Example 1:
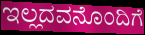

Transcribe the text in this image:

ಇಲ್ಲದವನೊಂದಿಗೆ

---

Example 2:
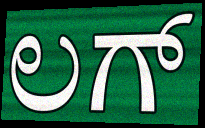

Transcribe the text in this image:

ಲಗ್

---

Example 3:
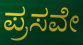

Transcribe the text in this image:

ಪ್ರಸವೇ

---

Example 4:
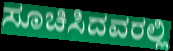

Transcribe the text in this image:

ಸೂಚಿಸಿದವರಲ್ಲಿ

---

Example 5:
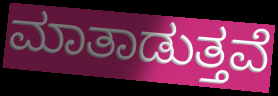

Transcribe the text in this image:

ಮಾತಾಡುತ್ತವೆ